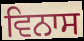
ਵਿਨਾਸ